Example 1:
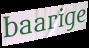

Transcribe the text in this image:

baarige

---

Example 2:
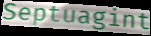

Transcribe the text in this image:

Septuagint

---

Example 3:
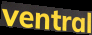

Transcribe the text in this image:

ventral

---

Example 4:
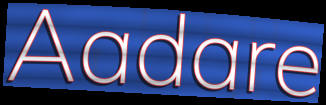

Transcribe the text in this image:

Aadare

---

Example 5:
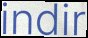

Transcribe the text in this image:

indir